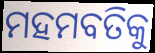
ମହମବତିକୁ